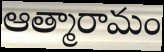
ఆత్మారామం